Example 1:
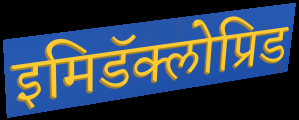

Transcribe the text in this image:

इमिडॅक्लोप्रिड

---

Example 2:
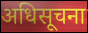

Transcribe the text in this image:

अधिसूचना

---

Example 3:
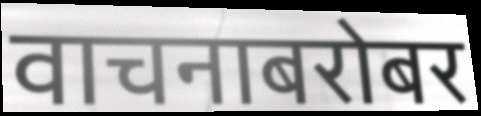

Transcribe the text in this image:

वाचनाबरोबर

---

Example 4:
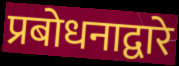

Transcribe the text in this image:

प्रबोधनाद्वारे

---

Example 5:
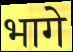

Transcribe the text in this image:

भागे